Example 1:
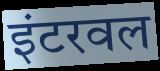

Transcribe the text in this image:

इंटरवल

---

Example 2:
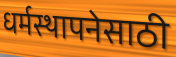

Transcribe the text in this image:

धर्मस्थापनेसाठी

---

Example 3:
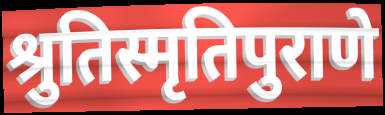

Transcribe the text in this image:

श्रुतिस्मृतिपुराणे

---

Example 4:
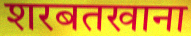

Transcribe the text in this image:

शरबतखाना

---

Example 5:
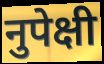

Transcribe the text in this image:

नुपेक्षी